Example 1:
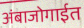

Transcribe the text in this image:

अंबाजोगाईत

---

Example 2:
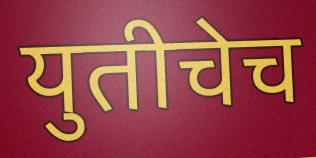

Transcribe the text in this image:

युतीचेच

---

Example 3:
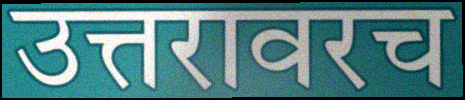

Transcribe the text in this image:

उत्तरावरच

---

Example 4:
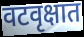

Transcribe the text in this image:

वटवृक्षात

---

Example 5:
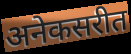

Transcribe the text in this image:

अनेकसरीत